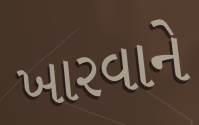
ખારવાને